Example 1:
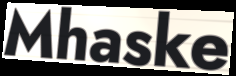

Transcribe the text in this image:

Mhaske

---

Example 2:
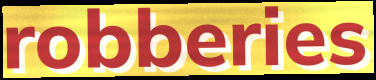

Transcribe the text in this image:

robberies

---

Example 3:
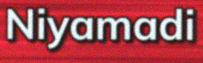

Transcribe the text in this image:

Niyamadi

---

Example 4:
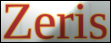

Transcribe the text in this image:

Zeris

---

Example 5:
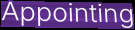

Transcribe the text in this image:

Appointing